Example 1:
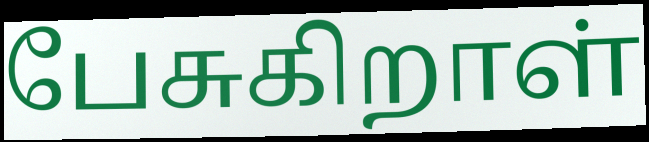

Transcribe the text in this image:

பேசுகிறாள்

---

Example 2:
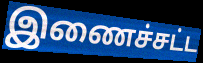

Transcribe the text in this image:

இணைச்சட்ட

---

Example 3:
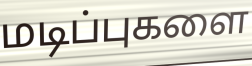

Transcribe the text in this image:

மடிப்புகளை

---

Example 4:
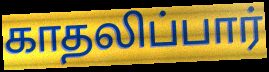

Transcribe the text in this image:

காதலிப்பார்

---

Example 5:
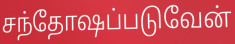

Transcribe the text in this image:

சந்தோஷப்படுவேன்